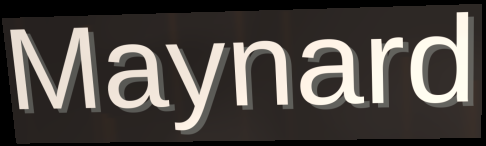
Maynard